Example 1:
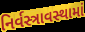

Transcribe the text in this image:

નિર્વસ્ત્રાવસ્થામાં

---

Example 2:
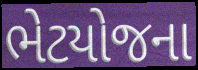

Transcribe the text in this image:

ભેટયોજના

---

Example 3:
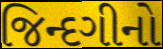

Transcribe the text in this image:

જિન્દગીનો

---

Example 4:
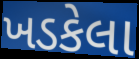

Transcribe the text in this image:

ખડકેલા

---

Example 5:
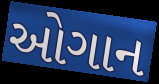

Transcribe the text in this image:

ઓગાન